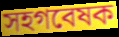
সহগবেষক